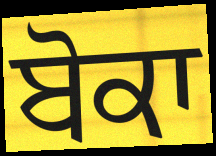
ਬੋਕਾ